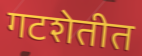
गटशेतीत